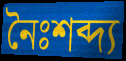
নৈঃশব্দ্য